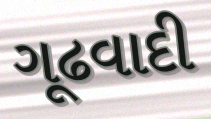
ગૂઢવાદી